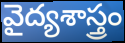
వైద్యశాస్త్రం